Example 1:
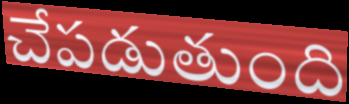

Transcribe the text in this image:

చేపడుతుంది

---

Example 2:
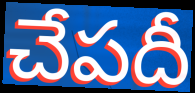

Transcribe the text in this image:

చేపదీ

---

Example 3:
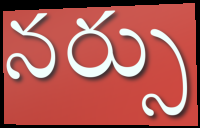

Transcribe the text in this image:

నర్సు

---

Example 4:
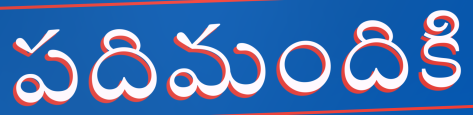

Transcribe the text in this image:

పదిమందికి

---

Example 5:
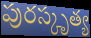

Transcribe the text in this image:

పురస్కృత్య